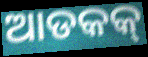
ଆଡକକ୍